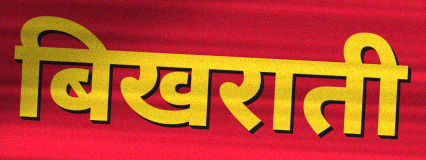
बिखराती